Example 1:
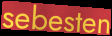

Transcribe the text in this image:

sebesten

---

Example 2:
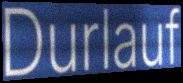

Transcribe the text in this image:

Durlauf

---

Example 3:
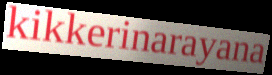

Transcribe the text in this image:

kikkerinarayana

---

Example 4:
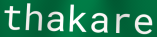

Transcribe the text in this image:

thakare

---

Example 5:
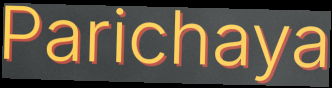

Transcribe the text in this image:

Parichaya